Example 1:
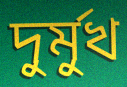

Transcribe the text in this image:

দুর্মুখ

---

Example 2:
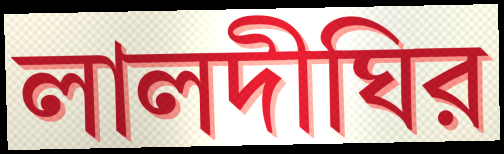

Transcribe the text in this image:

লালদীঘির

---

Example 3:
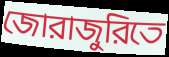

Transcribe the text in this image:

জোরাজুরিতে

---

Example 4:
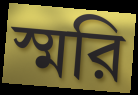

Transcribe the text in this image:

স্মরি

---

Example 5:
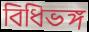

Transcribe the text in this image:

বিধিভঙ্গ